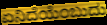
ಏನಿದೆಯೆಂಬುದು